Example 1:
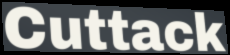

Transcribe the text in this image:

Cuttack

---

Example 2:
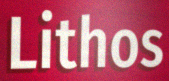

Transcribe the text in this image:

Lithos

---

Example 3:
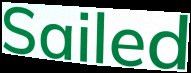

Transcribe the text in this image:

Sailed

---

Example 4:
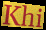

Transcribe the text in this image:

Khi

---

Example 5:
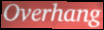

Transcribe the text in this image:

Overhang